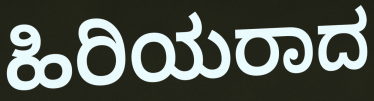
ಹಿರಿಯರಾದ